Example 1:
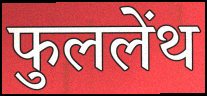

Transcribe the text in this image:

फुललेंथ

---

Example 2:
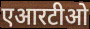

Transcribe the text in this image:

एआरटीओ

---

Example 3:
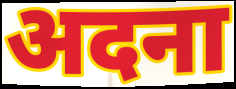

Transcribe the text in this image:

अदना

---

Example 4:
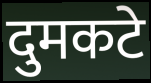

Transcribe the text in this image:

दुमकटे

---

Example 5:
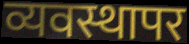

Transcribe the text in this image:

व्यवस्थापर